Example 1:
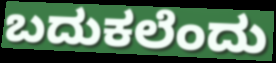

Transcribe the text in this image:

ಬದುಕಲೆಂದು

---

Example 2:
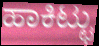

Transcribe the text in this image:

ಹಾಕಿಟ್ಟು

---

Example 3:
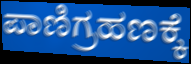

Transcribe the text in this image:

ಪಾಣಿಗ್ರಹಣಕ್ಕೆ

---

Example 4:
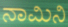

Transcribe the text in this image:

ನಾಮಿನಿ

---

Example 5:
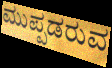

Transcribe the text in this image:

ಮುಪ್ಪಡರುವ